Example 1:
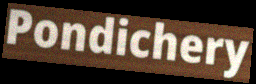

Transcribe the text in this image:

Pondichery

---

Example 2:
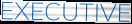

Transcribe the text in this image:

EXECUTIVE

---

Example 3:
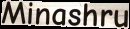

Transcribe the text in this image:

Minashru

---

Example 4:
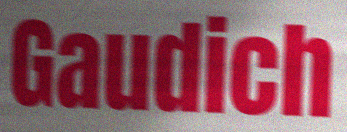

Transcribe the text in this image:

Gaudich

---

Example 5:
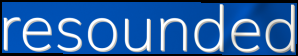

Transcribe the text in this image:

resounded